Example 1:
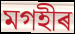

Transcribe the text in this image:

মগহীৰ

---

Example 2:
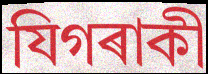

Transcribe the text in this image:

যিগৰাকী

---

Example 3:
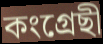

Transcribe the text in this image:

কংগ্ৰেছী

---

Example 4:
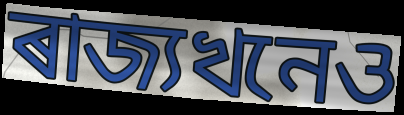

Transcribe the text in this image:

ৰাজ্যখনেও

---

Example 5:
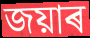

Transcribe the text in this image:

জয়াৰ